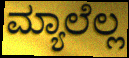
ಮ್ಯಾಲೆಲ್ಲ